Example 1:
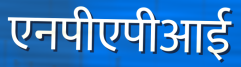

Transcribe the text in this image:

एनपीएपीआई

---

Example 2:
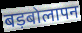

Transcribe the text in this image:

बड़बोलापन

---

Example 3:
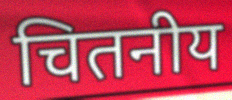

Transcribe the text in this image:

चितनीय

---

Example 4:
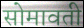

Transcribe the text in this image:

सोमावती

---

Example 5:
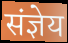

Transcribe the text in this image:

संज्ञेय